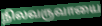
நிலவருவாயை